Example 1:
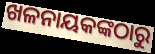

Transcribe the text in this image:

ଖଳନାୟକଙ୍କଠାରୁ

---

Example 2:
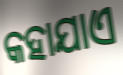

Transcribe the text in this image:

କହାଯାଏ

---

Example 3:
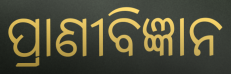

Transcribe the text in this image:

ପ୍ରାଣୀବିଜ୍ଞାନ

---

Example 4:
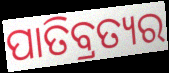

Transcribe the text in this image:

ପାତିବ୍ରତ୍ୟର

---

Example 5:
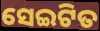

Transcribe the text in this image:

ସେଇଟିତ